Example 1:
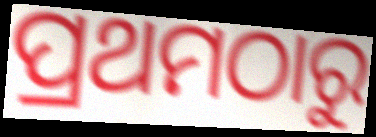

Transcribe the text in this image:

ପ୍ରଥମଠାରୁ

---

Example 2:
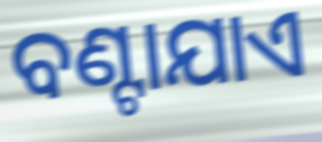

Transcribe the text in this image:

ବଣ୍ଟାଯାଏ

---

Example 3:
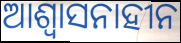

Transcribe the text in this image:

ଆଶ୍ୱାସନାହୀନ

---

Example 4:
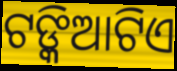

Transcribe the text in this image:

ଟଙ୍କିଆଟିଏ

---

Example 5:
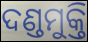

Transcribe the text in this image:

ଦଣ୍ଡମୁକ୍ତି